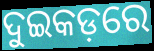
ଦୁଇକଡ଼ରେ